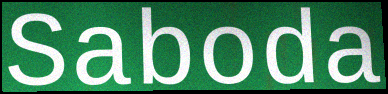
Saboda